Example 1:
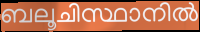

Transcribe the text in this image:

ബലൂചിസ്ഥാനിൽ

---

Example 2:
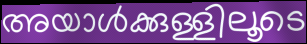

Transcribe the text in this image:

അയാൾക്കുള്ളിലൂടെ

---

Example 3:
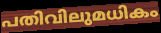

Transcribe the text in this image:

പതിവിലുമധികം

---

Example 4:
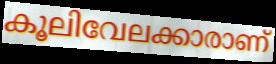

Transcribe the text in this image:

കൂലിവേലക്കാരാണ്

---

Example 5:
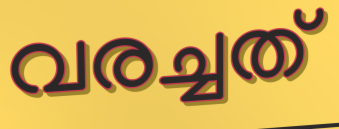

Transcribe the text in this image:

വരച്ചത്